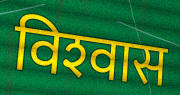
विश्‍वास